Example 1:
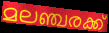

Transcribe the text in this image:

മലഞ്ചരക്ക്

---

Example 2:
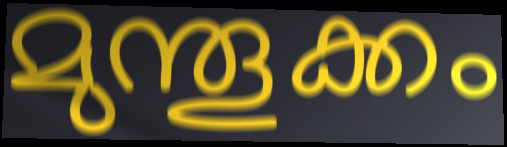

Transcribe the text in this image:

മുന്തൂക്കം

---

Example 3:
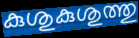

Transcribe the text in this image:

കുശുകുശുത്തു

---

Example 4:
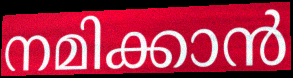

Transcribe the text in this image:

നമിക്കാൻ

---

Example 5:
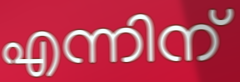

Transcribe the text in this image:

എന്നിന്